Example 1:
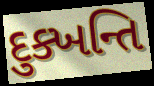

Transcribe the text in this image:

દુક્ખન્તિ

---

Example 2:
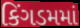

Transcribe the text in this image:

કિંગડમમાં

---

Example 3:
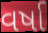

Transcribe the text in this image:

વર્ષા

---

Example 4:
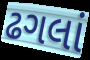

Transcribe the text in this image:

ઢગલાં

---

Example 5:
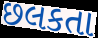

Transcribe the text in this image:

છલકતા